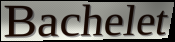
Bachelet